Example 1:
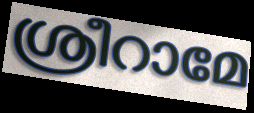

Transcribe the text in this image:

ശ്രീറാമേ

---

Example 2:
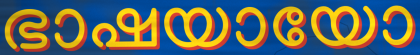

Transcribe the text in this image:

ഭാഷയായോ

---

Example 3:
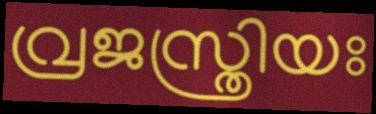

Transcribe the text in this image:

വ്രജസ്ത്രിയഃ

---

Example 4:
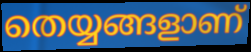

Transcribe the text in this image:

തെയ്യങ്ങളാണ്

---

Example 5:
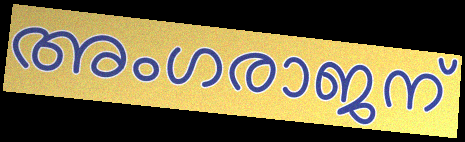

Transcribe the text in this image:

അംഗരാജന്